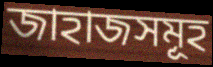
জাহাজসমূহ